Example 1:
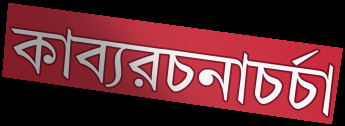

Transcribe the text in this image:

কাব্যরচনাচর্চা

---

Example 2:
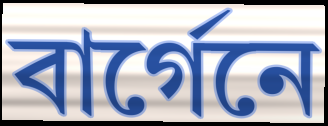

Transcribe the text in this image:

বার্গেনে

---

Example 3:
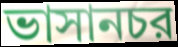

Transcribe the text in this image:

ভাসানচর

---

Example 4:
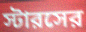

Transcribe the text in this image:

স্টারসের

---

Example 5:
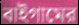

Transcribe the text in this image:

বাইগামের